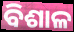
ବିଶାଳ